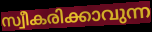
സ്വീകരിക്കാവുന്ന